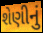
શેણીનું